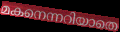
മകനെന്നറിയാതെ